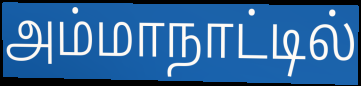
அம்மாநாட்டில்